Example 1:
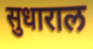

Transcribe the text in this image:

सुधाराल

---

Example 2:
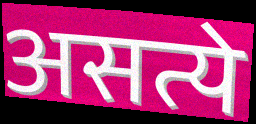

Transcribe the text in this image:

असत्ये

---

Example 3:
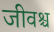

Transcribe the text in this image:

जीवश्च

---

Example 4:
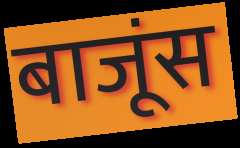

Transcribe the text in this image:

बाजूंस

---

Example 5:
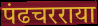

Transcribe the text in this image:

पंढचरराया